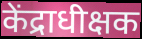
केंद्राधीक्षक